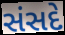
સંસદે